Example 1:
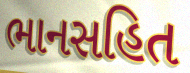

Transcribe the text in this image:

ભાનસહિત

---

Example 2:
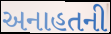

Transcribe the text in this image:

અનાહતની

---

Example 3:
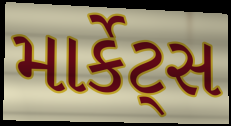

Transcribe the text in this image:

માર્કેટ્સ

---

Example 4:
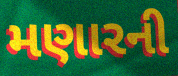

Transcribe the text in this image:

મણારની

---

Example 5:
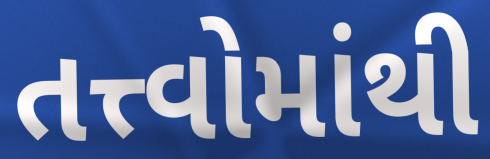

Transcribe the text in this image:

તત્ત્વોમાંથી